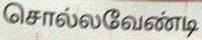
சொல்லவேண்டி